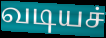
வடியச்